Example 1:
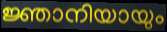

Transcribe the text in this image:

ജ്ഞാനിയായും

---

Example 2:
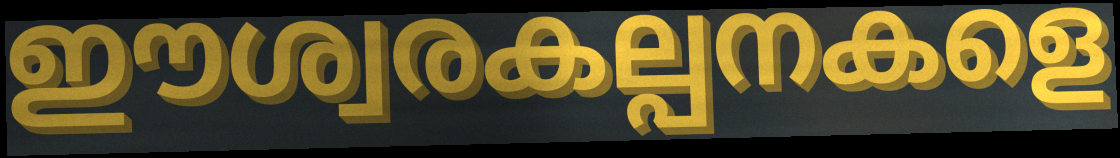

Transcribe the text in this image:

ഈശ്വരകല്പനകളെ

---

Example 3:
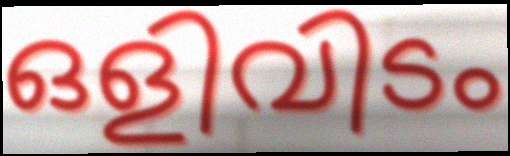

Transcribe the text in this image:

ഒളിവിടം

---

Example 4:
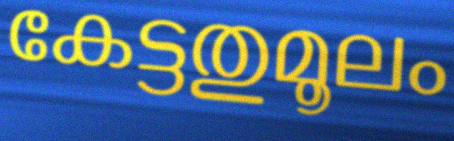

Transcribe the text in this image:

കേട്ടതുമൂലം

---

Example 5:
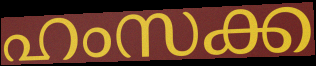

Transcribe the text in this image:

ഹംസക്ക